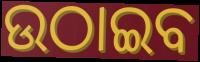
ଉଠାଇବ